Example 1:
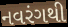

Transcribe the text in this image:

નવરંગથી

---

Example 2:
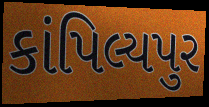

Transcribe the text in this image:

કાંપિલ્યપુર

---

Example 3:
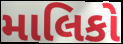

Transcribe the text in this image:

માલિકો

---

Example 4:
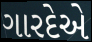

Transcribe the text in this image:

ગારદેએ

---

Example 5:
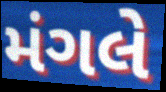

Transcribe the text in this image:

મંગલે